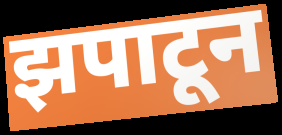
झपाटून